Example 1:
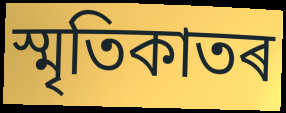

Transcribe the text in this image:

স্মৃতিকাতৰ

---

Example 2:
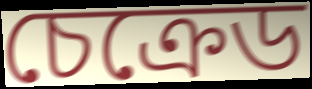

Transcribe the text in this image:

চেক্ৰেড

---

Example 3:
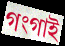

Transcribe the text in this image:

গংগাই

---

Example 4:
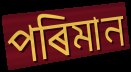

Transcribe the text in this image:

পৰিমান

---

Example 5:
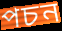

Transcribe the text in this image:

পচন